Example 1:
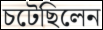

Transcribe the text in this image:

চটেছিলেন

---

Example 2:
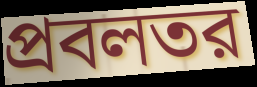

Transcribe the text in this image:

প্রবলতর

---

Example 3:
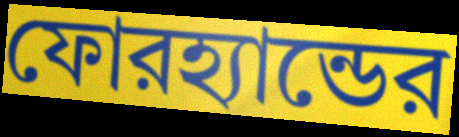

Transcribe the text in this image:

ফোরহ্যান্ডের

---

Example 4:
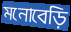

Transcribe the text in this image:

মনোবেড়ি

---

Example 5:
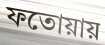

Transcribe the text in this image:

ফতোয়ায়